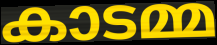
കാടമ്മ